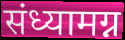
संध्यामग्न